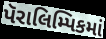
પૅરાલિમ્પિકમાં